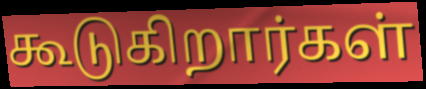
கூடுகிறார்கள்